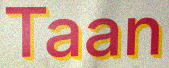
Taan